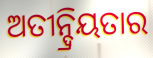
ଅତୀନ୍ଦ୍ରିୟତାର